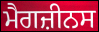
ਮੈਗਜ਼ੀਨਸ